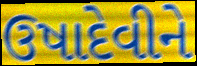
ઉષાદેવીને